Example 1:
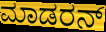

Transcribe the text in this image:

ಮಾಡರನ್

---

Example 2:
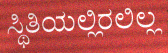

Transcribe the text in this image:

ಸ್ಥಿತಿಯಲ್ಲಿರಲಿಲ್ಲ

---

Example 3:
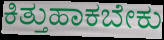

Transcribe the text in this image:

ಕಿತ್ತುಹಾಕಬೇಕು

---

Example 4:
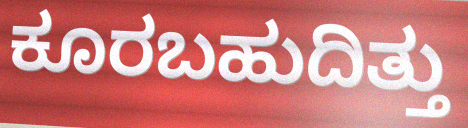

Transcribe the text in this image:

ಕೂರಬಹುದಿತ್ತು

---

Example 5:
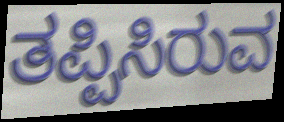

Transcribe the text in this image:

ತಪ್ಪಿಸಿರುವ